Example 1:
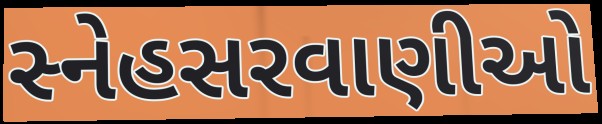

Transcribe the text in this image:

સ્નેહસરવાણીઓ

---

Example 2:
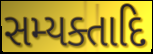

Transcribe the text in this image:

સમ્યક્તાદિ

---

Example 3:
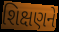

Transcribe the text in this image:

શિક્ષણને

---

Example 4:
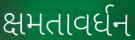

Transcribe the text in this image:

ક્ષમતાવર્ધન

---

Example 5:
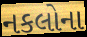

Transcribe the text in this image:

નકલોના